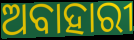
ଅବାହାରୀ